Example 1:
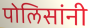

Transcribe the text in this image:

पोलिसांनी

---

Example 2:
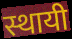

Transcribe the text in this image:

स्थायी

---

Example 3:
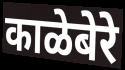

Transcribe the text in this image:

काळेबेरे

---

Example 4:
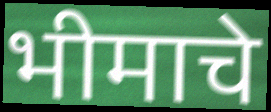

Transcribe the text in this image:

भीमाचे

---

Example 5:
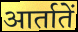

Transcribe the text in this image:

आर्तातें